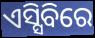
ଏସ୍ସିବିରେ